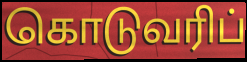
கொடுவரிப்